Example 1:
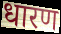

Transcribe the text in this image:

धारण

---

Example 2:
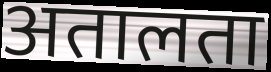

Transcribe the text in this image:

अतालता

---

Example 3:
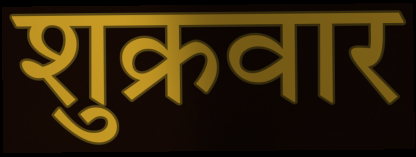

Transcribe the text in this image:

शुक्रवार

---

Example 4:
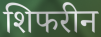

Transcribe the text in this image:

शिफरीन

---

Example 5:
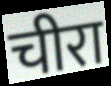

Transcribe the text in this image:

चीरा